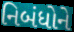
નિબંધોને